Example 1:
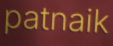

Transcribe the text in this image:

patnaik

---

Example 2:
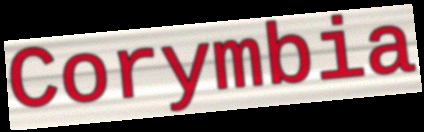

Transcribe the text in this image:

Corymbia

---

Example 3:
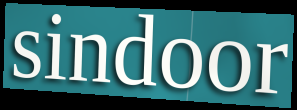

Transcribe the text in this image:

sindoor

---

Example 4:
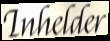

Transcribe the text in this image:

Inhelder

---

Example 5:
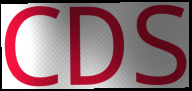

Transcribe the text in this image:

CDS